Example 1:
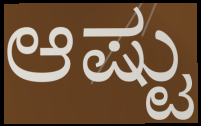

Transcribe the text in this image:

ಆಷ್ಟು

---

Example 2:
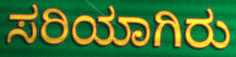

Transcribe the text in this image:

ಸರಿಯಾಗಿರು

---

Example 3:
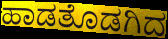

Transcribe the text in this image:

ಹಾಡತೊಡಗಿದ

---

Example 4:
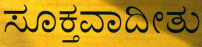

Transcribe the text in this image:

ಸೂಕ್ತವಾದೀತು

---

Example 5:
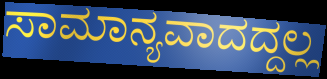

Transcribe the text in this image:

ಸಾಮಾನ್ಯವಾದದ್ದಲ್ಲ